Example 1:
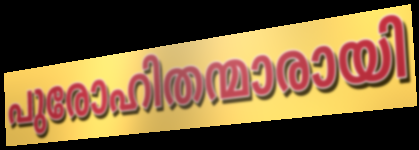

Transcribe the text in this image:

പുരോഹിതന്മാരായി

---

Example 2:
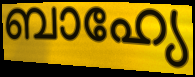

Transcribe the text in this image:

ബാഹ്യേ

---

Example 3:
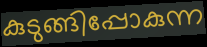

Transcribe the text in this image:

കുടുങ്ങിപ്പോകുന്ന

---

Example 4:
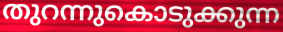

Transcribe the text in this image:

തുറന്നുകൊടുക്കുന്ന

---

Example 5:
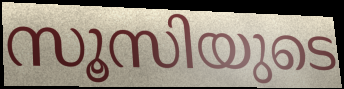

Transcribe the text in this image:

സൂസിയുടെ